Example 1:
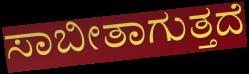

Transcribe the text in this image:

ಸಾಬೀತಾಗುತ್ತದೆ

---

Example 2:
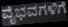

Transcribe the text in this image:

ವೈಭವಗಳಿಗೆ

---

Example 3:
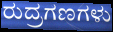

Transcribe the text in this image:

ರುದ್ರಗಣಗಳು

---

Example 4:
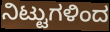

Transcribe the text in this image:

ನಿಟ್ಟುಗಳಿಂದ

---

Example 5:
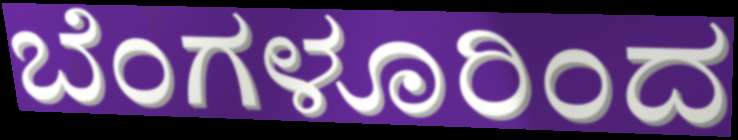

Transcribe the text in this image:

ಬೆಂಗಳೂರಿಂದ